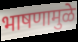
भाषणामुळे